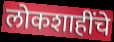
लोकशाहींचे